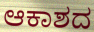
ಆಕಾಶದ